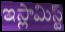
ఇస్లామిస్ట్